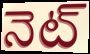
నెట్